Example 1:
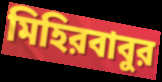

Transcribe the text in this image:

মিহিরবাবুর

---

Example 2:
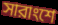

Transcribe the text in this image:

সারাংশে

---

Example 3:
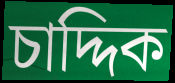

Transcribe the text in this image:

চাদ্দিক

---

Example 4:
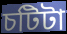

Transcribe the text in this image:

চটিটা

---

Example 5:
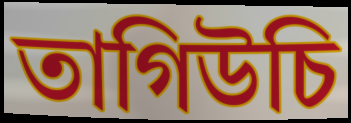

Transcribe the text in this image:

তাগিউচি